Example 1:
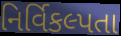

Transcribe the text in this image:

નિર્વિકલ્પતા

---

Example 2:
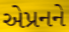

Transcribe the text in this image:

એપ્રનને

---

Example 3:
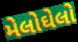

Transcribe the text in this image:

મેલોઘેલો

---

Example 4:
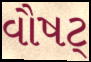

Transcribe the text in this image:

વૌષટ્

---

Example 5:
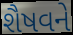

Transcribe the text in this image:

શૈષવને